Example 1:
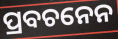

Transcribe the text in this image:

ପ୍ରବଚନେନ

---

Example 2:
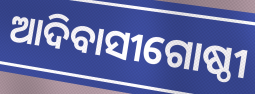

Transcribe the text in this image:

ଆଦିବାସୀଗୋଷ୍ଠୀ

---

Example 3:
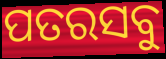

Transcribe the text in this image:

ପତରସବୁ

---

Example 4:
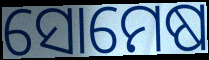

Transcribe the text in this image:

ସୋମେଷ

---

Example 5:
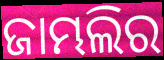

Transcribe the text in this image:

ଜାମ୍ଭଲିର